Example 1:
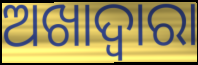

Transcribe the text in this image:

ଅଖାଦ୍ୱାରା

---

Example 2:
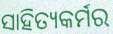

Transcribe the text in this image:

ସାହିତ୍ୟକର୍ମର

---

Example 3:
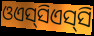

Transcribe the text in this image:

ଓଏସ୍‌ସିଏସ୍‌ସି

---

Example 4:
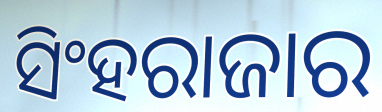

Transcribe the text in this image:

ସିଂହରାଜାର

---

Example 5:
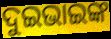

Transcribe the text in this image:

ଦୁଇଭାଇଙ୍କ